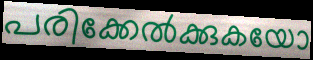
പരിക്കേൽക്കുകയോ